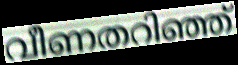
വീണതറിഞ്ഞ്